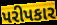
પરીપકાર